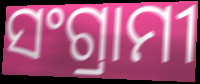
ସଂଗ୍ରାମୀ